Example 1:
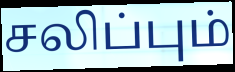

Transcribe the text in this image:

சலிப்பும்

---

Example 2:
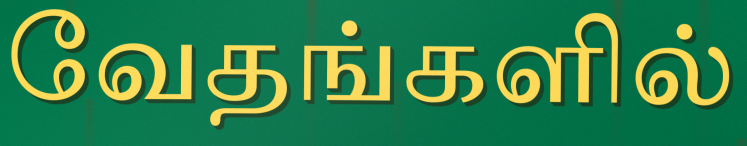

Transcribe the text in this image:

வேதங்களில்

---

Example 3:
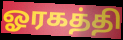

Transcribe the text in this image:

ஓரகத்தி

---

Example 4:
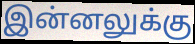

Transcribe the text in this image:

இன்னலுக்கு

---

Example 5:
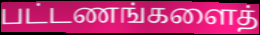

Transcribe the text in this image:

பட்டணங்களைத்